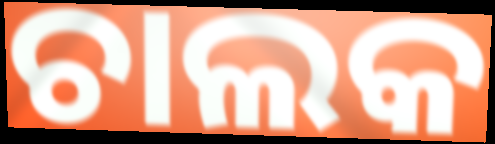
ଚାଲକ